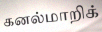
கனல்மாறிக்